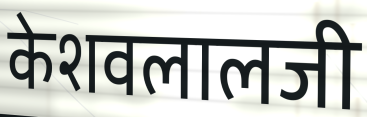
केशवलालजी